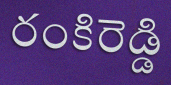
రంకిరెడ్డి